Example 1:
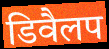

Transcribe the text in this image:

डिवैलप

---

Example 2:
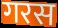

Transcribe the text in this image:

गरस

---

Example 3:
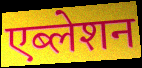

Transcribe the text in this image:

एब्लेशन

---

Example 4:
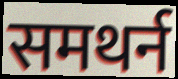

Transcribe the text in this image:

समथर्न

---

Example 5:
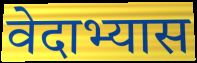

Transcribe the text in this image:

वेदाभ्यास